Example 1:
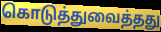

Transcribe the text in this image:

கொடுத்துவைத்தது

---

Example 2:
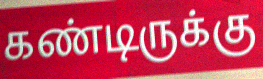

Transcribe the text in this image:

கண்டிருக்கு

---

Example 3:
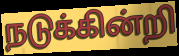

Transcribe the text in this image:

நடுக்கின்றி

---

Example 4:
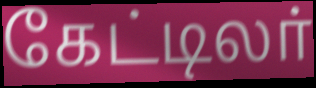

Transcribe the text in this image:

கேட்டிலர்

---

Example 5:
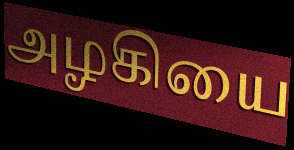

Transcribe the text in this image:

அழகியை